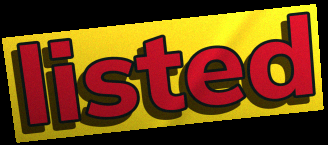
listed